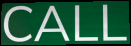
CALL